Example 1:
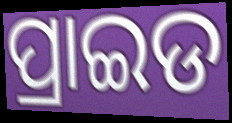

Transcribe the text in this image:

ପ୍ରାଇଡ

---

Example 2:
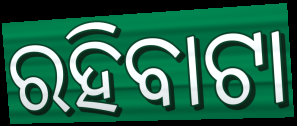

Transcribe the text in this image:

ରହିବାଟା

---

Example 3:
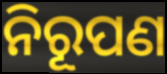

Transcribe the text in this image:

ନିରୂପଣ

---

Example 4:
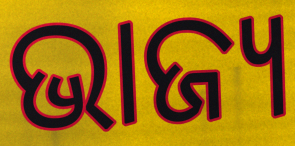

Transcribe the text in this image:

ଭାଜ୍ୟ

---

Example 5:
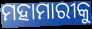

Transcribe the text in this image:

ମହାମାରୀକୁ